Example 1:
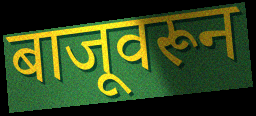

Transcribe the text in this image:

बाजूवरून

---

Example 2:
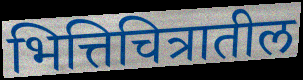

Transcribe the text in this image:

भित्तिचित्रातील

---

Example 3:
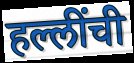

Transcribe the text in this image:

हल्लींची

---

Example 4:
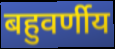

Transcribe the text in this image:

बहुवर्णीय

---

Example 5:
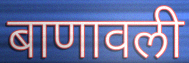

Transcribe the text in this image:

बाणावली